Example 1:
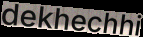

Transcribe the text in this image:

dekhechhi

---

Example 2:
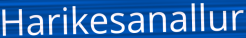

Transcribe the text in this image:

Harikesanallur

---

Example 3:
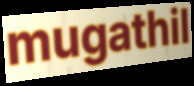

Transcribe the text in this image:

mugathil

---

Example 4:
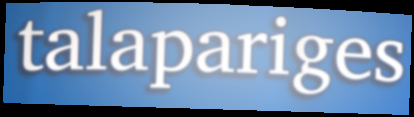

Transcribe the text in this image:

talapariges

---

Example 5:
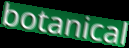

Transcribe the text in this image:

botanical